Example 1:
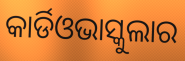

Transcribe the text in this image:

କାର୍ଡିଓଭାସ୍କୁଲାର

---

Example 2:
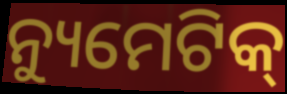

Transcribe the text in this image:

ନ୍ୟୁମେଟିକ୍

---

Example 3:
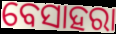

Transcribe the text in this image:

ବେସାହରା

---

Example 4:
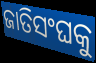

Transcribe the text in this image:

ଜାତିସଂଘକୁ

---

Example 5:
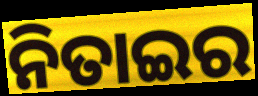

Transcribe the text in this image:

ନିତାଇର